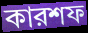
কারশফ